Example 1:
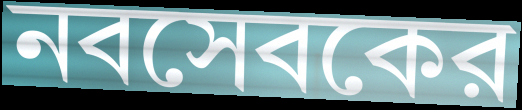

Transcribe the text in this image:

নবসেবকের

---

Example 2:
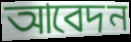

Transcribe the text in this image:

আবেদন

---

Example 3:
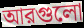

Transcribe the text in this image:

আরগুলো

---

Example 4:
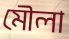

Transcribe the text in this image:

মৌলা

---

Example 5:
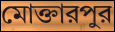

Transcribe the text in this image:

মোক্তারপুর